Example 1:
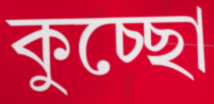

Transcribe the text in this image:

কুচ্ছো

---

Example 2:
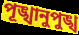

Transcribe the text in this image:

পূঙ্খানুপুঙ্খ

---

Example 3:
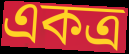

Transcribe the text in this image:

একত্র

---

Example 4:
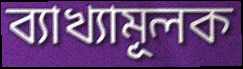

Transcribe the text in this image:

ব্যাখ্যামূলক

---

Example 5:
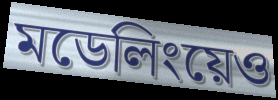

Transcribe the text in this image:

মডেলিংয়েও